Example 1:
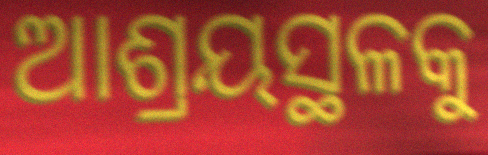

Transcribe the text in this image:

ଆଶ୍ରୟସ୍ଥଳକୁ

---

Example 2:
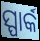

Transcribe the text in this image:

ସ୍ପାର୍କ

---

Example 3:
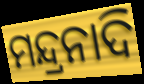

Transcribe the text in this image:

ମନ୍ଦ୍ରନାଦି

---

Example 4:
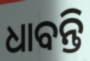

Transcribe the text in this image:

ଧାବନ୍ତି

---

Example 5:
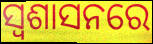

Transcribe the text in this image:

ସ୍ଵଶାସନରେ